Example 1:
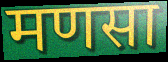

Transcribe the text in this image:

मणसा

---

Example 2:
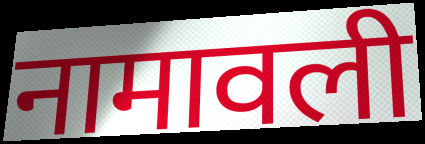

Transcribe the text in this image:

नामावली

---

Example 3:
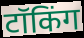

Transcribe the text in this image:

टॉकिंग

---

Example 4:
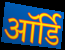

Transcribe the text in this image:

ऑर्डि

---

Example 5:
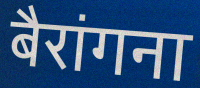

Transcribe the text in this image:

बैरांगना